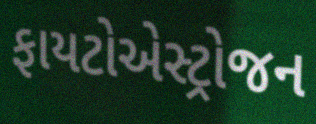
ફાયટોએસ્ટ્રોજન